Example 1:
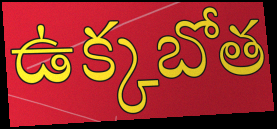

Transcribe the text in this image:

ఉక్కబోత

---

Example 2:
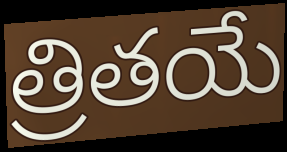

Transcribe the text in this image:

త్రితయే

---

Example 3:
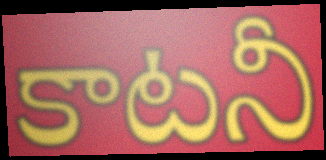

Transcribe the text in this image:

కాటనీ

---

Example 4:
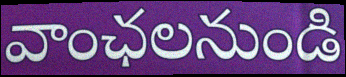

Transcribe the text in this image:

వాంఛలనుండి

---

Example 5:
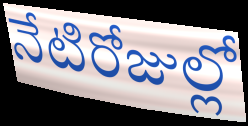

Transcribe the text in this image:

నేటిరోజుల్లో